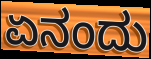
ಏನಂದು